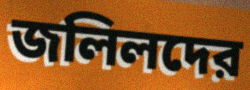
জলিলদের